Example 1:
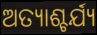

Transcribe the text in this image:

ଅତ୍ୟାଶ୍ଚର୍ଯ୍ୟ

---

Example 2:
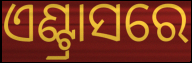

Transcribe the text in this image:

ଏଣ୍ଟ୍ରାସରେ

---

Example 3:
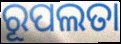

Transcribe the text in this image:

ରୂପଲତା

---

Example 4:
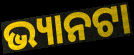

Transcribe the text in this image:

ଭ୍ୟାନଟା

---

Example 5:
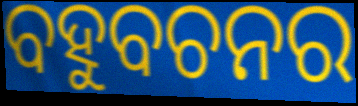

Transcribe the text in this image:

ବହୁବଚନର